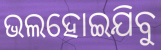
ଭଲହୋଇଯିବୁ